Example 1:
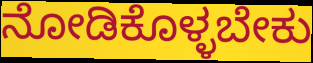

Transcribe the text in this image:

ನೋಡಿಕೊಳ್ಳಬೇಕು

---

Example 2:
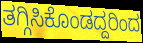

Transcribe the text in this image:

ತಗ್ಗಿಸಿಕೊಂಡದ್ದರಿಂದ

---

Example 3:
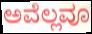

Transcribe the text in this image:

ಅವೆಲ್ಲವೂ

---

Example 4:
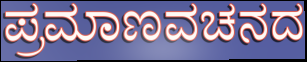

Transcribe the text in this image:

ಪ್ರಮಾಣವಚನದ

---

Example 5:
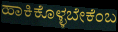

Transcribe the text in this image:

ಹಾಕಿಕೊಳ್ಳಬೇಕೆಂಬ